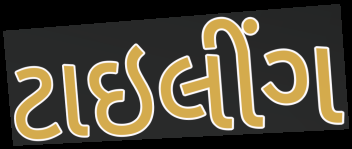
ટાઇલીંગ